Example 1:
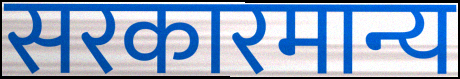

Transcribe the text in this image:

सरकारमान्य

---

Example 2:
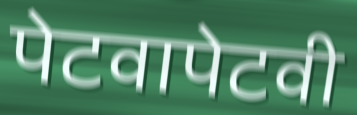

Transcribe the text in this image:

पेटवापेटवी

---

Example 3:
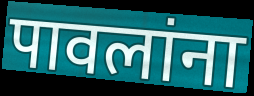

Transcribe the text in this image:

पावलांना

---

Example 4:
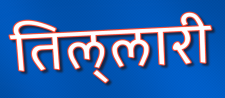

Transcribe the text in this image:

तिल्लारी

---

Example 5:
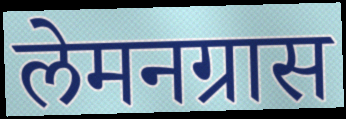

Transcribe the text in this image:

लेमनग्रास